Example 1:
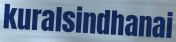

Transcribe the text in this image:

kuralsindhanai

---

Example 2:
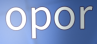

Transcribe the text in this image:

opor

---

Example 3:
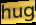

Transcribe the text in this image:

hug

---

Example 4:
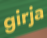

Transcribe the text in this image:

girja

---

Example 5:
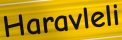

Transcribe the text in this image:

Haravleli